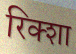
रिक्शा